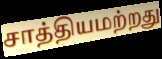
சாத்தியமற்றது